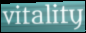
vitality